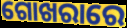
ଗୋଖରାରେ